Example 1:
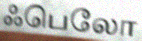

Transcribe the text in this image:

ஃபெலோ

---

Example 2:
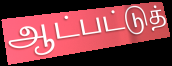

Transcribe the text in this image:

ஆட்பட்டுத்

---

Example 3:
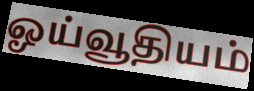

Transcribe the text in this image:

ஓய்வூதியம்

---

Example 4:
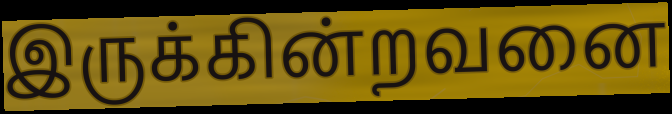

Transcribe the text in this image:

இருக்கின்றவனை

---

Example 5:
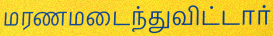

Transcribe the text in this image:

மரணமடைந்துவிட்டார்